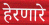
हेरणारे